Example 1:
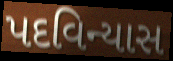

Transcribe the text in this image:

પદવિન્યાસ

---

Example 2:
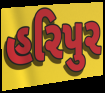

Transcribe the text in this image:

હરિપુર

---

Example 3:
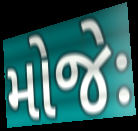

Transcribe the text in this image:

મોજેઃ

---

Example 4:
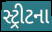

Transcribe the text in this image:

સ્ટ્રીટના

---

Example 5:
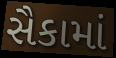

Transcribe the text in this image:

સૈકામાં